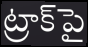
ట్రాక్‌పై